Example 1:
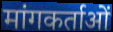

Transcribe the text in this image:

मांगकर्ताओं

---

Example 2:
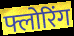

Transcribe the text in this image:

फ्लोरिंग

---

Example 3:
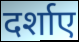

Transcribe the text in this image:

दर्शाए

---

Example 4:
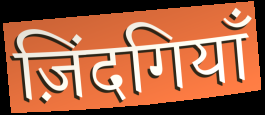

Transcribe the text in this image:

ज़िंदगियाँ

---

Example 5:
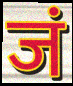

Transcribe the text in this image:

जं